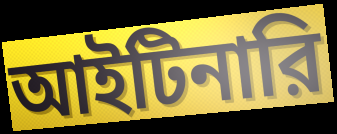
আইটিনারি